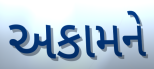
અકામને